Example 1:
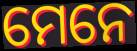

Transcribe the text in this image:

ମେନେ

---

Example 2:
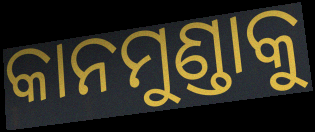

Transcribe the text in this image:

କାନମୁଣ୍ଡାକୁ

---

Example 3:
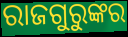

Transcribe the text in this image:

ରାଜଗୁରୁଙ୍କର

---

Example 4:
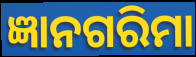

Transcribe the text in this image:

ଜ୍ଞାନଗରିମା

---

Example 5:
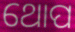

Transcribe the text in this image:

ଥୋପ